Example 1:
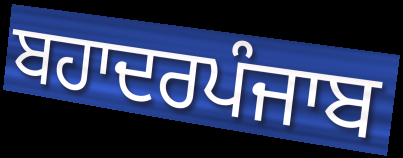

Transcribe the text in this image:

ਬਹਾਦਰਪੰਜਾਬ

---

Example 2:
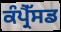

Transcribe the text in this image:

ਕੰਪ੍ਰੈੱਸਡ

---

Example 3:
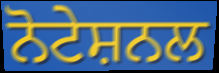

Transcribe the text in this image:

ਨੋਟੇਸ਼ਨਲ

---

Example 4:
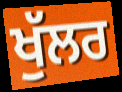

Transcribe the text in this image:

ਖੁੱਲਰ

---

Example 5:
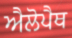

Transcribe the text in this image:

ਐਲੋਪੈਥ